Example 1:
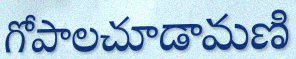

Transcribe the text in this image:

గోపాలచూడామణి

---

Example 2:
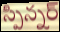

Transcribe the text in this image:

స్పిన్నర్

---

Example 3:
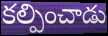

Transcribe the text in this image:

కల్పించాడు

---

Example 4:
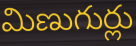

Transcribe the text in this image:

మిణుగుర్లు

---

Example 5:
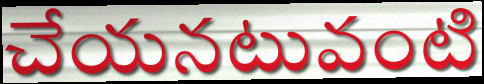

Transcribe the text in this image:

చేయనటువంటి